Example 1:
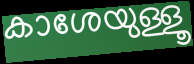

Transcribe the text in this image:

കാശേയുള്ളൂ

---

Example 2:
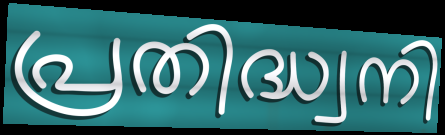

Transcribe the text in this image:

പ്രതിദ്ധ്വനി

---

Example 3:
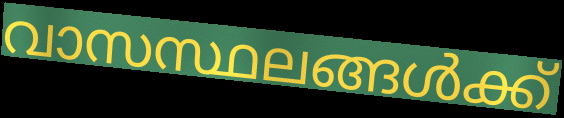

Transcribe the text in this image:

വാസസ്ഥലങ്ങൾക്ക്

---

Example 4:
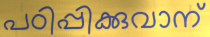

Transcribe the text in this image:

പഠിപ്പിക്കുവാന്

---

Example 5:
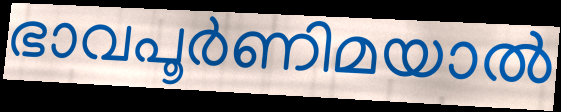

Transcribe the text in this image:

ഭാവപൂർണിമയാൽ